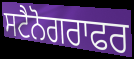
ਸਟੈਨੋਗਰਾਫਰ